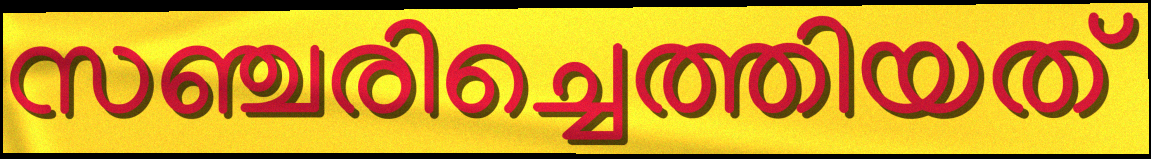
സഞ്ചരിച്ചെത്തിയത്